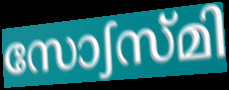
സോഽസ്മി